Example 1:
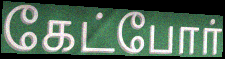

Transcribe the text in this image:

கேட்போர்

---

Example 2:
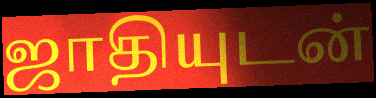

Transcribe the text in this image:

ஜாதியுடன்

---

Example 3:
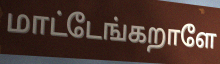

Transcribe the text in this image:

மாட்டேங்கறாளே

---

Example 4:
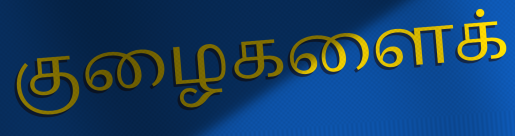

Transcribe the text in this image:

குழைகளைக்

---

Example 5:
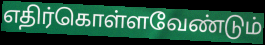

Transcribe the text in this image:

எதிர்கொள்ளவேண்டும்